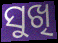
ସୁଖି